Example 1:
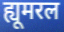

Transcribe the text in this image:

ह्यूमरल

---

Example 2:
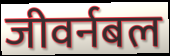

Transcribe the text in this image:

जीवर्नबल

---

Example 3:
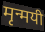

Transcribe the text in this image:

मृन्मयी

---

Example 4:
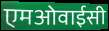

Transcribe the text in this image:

एमओवाईसी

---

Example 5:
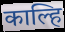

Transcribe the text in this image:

काल्हि